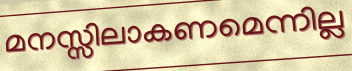
മനസ്സിലാകണമെന്നില്ല